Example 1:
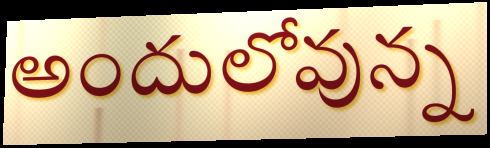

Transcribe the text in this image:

అందులోవున్న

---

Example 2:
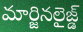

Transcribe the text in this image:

మార్జినలైజ్డ్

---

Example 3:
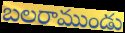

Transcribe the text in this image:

బలరాముండు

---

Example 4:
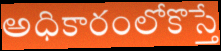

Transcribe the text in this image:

అధికారంలోకొస్తే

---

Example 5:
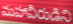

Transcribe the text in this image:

మహావీరుడిని